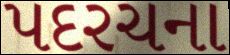
પદરચના